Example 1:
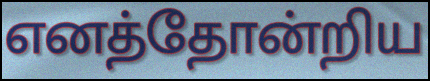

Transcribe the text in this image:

எனத்தோன்றிய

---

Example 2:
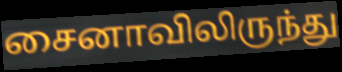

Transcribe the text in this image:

சைனாவிலிருந்து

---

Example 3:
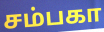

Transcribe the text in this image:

சம்பகா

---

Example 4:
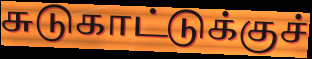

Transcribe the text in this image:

சுடுகாட்டுக்குச்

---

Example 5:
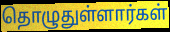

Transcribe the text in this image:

தொழுதுள்ளார்கள்